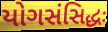
યોગસંસિદ્ધઃ